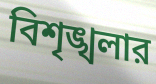
বিশৃঙ্খলার